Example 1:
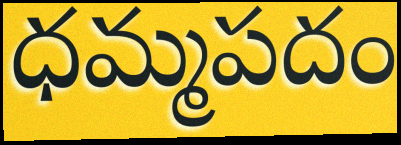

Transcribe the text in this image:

ధమ్మపదం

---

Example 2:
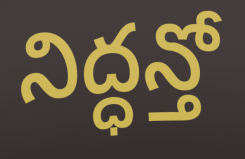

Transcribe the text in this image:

నిద్ధన్తో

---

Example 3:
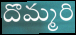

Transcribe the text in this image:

దొమ్మరి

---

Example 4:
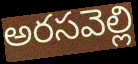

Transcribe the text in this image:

అరసవెల్లి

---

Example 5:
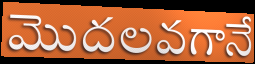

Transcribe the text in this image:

మొదలవగానే